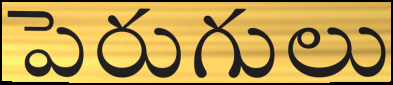
పెరుగులు